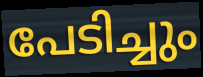
പേടിച്ചും